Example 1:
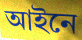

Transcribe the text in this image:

আইনে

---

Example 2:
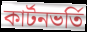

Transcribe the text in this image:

কার্টনভর্তি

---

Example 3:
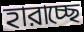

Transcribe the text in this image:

হারাচ্ছে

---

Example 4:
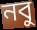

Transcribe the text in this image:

নবু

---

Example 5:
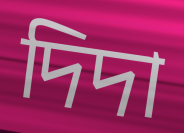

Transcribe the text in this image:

দিদা